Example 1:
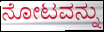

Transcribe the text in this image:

ನೋಟವನ್ನು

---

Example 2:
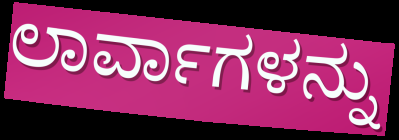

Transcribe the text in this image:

ಲಾರ್ವಾಗಳನ್ನು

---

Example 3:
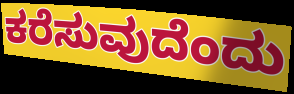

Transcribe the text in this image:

ಕರೆಸುವುದೆಂದು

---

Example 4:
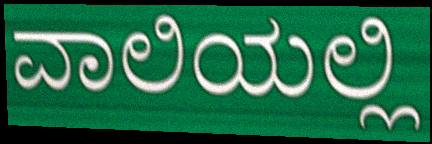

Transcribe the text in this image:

ವಾಲಿಯಲ್ಲಿ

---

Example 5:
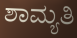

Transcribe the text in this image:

ಶಾಮ್ಯತಿ